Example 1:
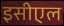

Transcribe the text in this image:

इसीएल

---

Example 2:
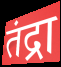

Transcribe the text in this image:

तंद्रा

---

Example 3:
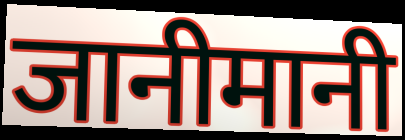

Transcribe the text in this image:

जानीमानी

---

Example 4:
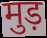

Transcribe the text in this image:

मुड़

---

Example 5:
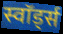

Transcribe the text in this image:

स्वॉर्ड्स